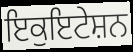
ਇਕੁਇਟੇਸ਼ਨ